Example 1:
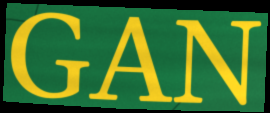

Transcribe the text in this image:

GAN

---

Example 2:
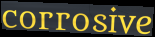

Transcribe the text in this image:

corrosive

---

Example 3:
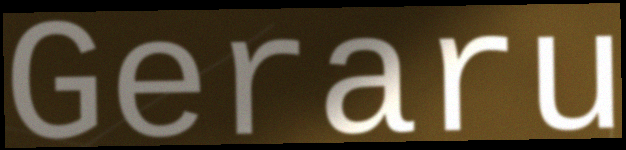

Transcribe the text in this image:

Geraru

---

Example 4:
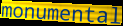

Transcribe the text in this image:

monumental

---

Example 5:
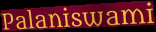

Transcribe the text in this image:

Palaniswami